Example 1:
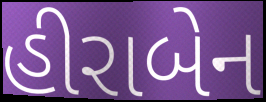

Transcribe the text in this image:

હીરાબેન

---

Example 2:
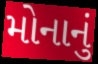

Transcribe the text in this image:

મોનાનું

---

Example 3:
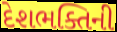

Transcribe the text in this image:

દેશભક્તિની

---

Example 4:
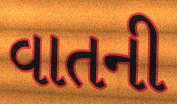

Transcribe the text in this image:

વાતની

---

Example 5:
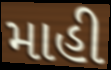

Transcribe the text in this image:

માહી